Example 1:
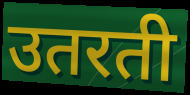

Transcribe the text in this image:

उतरती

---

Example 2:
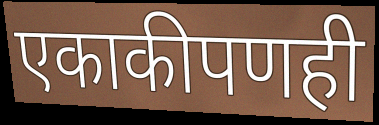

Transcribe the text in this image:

एकाकीपणही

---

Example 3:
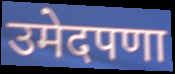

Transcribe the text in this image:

उमेदपणा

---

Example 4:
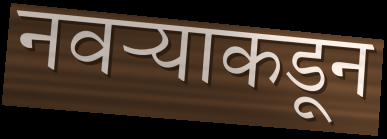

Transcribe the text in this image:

नवऱ्याकडून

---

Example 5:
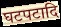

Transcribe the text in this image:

घटपटादि